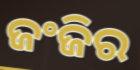
ଜଂଜିର